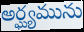
అర్ఘ్యమును